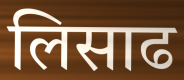
लिसाढ